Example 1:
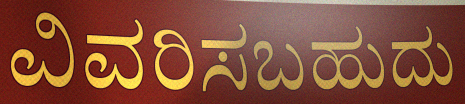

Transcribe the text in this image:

ವಿವರಿಸಬಹುದು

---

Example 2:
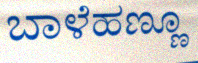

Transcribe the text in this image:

ಬಾಳೆಹಣ್ಣೂ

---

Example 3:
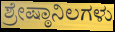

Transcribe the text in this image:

ಶ್ರೇಷ್ಠಾನಿಲಗಳು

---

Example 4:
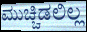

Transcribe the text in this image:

ಮುಚ್ಚಿಡಲಿಲ್ಲ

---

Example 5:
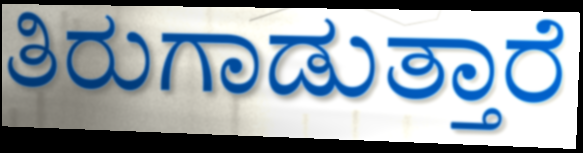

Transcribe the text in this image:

ತಿರುಗಾಡುತ್ತಾರೆ